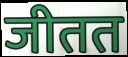
जीतत